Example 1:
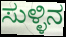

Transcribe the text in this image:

ಸುಳ್ಳಿನ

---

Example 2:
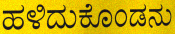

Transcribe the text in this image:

ಹಳಿದುಕೊಂಡನು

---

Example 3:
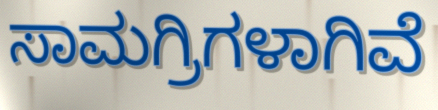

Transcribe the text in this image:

ಸಾಮಗ್ರಿಗಳಾಗಿವೆ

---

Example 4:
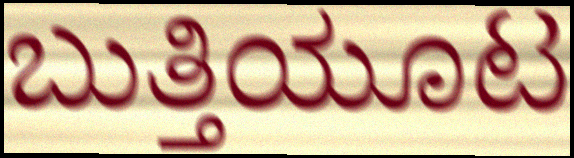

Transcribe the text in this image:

ಬುತ್ತಿಯೂಟ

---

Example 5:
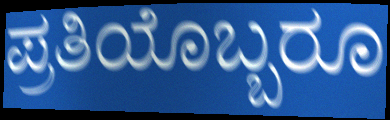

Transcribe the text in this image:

ಪ್ರತಿಯೊಬ್ಬರೂ